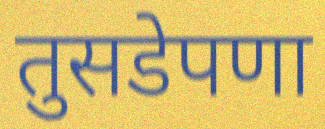
तुसडेपणा